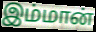
இம்மான்